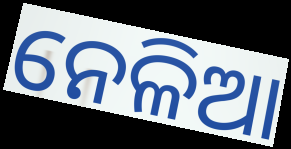
ନେଳିଆ